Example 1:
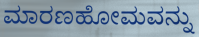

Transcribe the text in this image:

ಮಾರಣಹೋಮವನ್ನು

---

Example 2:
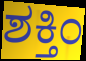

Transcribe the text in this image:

ಶಕ್ತಿಂ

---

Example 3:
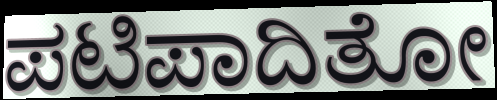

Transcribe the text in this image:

ಪಟಿಪಾದಿತೋ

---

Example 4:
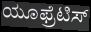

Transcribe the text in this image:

ಯೂಫ್ರೆಟಿಸ್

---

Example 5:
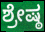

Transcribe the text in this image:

ಶ್ರೇಷ್ಠ